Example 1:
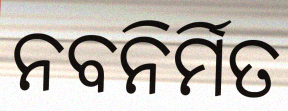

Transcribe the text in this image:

ନବନିର୍ମିତ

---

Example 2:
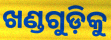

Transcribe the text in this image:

ଖଣ୍ଡଗୁଡ଼ିକୁ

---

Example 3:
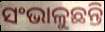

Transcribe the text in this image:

ସଂଭାଳୁଛନ୍ତି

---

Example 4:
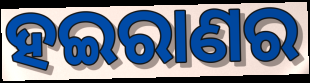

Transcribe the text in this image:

ହଇରାଣର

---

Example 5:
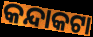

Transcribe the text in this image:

କନ୍ଦାକଟା